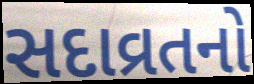
સદાવ્રતનો